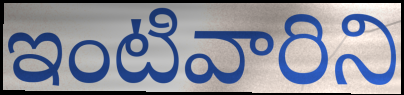
ఇంటివారిని